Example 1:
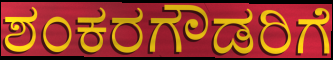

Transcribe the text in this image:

ಶಂಕರಗೌಡರಿಗೆ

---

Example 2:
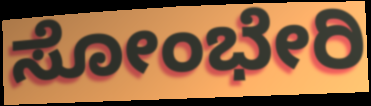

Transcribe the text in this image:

ಸೋಂಭೇರಿ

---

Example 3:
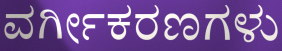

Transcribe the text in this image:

ವರ್ಗೀಕರಣಗಳು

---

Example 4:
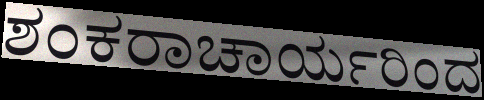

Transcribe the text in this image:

ಶಂಕರಾಚಾರ್ಯರಿಂದ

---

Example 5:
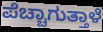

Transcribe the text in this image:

ಪೆಚ್ಚಾಗುತ್ತಾಳೆ